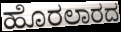
ಹೊರಲಾರದ